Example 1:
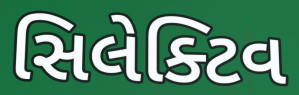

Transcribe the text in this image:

સિલેક્ટિવ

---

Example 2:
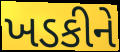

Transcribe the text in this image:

ખડકીને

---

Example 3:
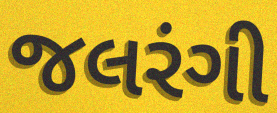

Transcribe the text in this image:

જલરંગી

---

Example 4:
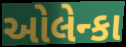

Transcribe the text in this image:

ઓલેન્કા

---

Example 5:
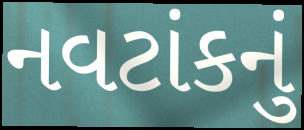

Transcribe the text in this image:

નવટાંકનું